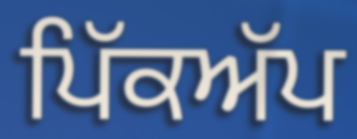
ਪਿੱਕਅੱਪ